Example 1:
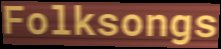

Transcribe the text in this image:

Folksongs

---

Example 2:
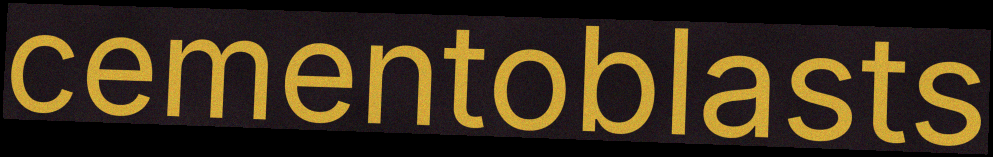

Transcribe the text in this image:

cementoblasts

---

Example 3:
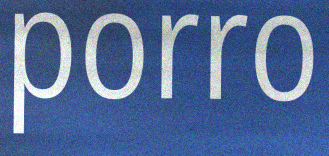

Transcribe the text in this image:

porro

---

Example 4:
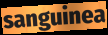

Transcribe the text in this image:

sanguinea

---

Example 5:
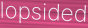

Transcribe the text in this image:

lopsided